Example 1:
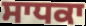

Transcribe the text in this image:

ਸਾਧਕਾ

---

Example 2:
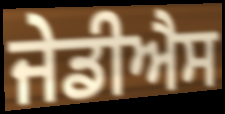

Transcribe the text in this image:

ਜੇਡੀਐਸ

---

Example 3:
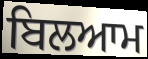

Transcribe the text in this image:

ਬਿਲਆਮ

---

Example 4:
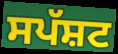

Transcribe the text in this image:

ਸਪੱਸ਼ਟ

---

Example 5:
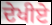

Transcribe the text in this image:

ਦੇਖੀਏ